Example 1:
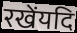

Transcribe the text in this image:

रखेंयदि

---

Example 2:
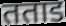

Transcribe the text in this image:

तताड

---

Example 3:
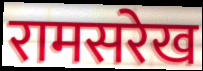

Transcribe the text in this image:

रामसरेख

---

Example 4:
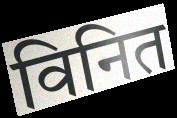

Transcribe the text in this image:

विनित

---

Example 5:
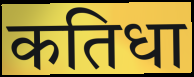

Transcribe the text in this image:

कतिधा